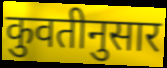
कुवतीनुसार